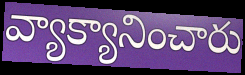
వ్యాక్యానించారు